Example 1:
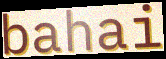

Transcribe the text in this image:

bahai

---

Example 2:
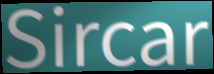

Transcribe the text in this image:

Sircar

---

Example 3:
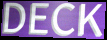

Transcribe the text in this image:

DECK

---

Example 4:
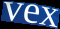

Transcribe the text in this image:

vex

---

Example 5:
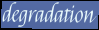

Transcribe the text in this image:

degradation